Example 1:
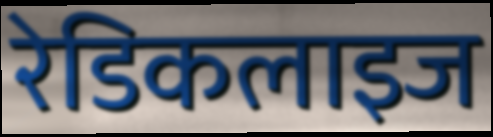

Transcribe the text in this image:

रेडिकलाइज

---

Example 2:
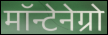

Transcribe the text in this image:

मॉन्टेनेग्रो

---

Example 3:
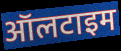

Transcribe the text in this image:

ऑलटाइम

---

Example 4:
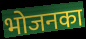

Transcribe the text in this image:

भोजनका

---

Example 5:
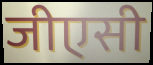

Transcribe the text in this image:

जीएसी